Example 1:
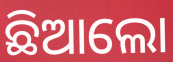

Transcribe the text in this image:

ଛିଆଲୋ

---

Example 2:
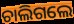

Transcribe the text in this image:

ଚାଲିଗଲେ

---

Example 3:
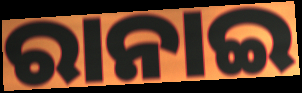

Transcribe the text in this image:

ରାନାଇ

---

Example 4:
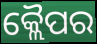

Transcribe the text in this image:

କ୍ଲୈପର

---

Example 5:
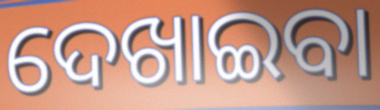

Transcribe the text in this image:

ଦେଖାଇବା